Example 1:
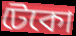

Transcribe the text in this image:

টেকো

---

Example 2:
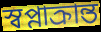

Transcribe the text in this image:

স্বপ্নাক্রান্ত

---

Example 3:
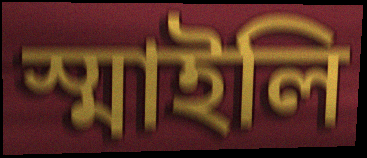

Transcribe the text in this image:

স্মাইলি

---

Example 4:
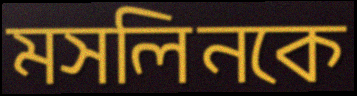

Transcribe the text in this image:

মসলিনকে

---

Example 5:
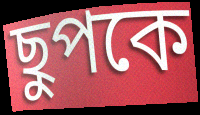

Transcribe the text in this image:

ছুপকে